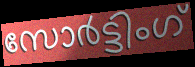
സോർട്ടിംഗ്